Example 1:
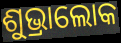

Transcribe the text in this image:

ଶୁଭ୍ରାଲୋକ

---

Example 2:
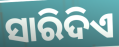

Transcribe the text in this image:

ସାରିଦିଏ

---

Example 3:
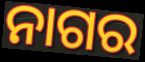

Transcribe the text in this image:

ନାଗର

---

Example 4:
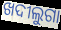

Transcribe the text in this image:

ଖଦୀଲୁଗା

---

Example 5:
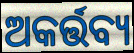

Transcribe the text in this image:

ଅକର୍ତ୍ତବ୍ୟ